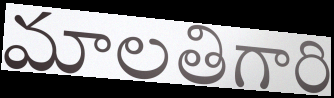
మాలతిగారి